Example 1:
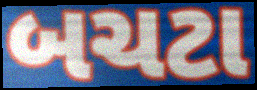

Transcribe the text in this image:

બચટા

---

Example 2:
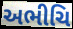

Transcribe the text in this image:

અભીચિ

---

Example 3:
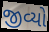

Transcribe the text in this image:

જીવ્યો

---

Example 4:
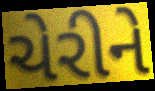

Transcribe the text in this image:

ચેરીને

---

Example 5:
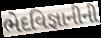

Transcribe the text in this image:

ભેદવિજ્ઞાનીની